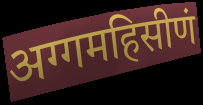
अग्गमहिसीणं